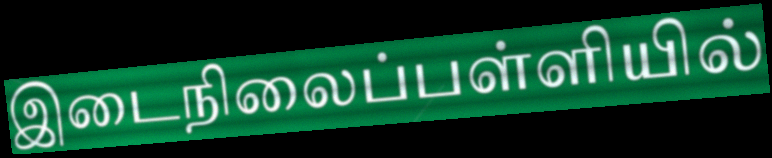
இடைநிலைப்பள்ளியில்